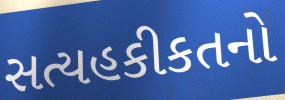
સત્યહકીકતનો